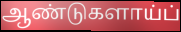
ஆண்டுகளாய்ப்